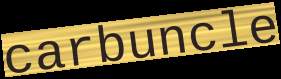
carbuncle